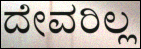
ದೇವರಿಲ್ಲ